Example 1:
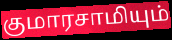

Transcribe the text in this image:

குமாரசாமியும்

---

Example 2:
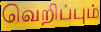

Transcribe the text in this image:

வெறிப்பும்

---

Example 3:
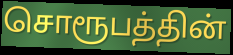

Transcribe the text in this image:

சொரூபத்தின்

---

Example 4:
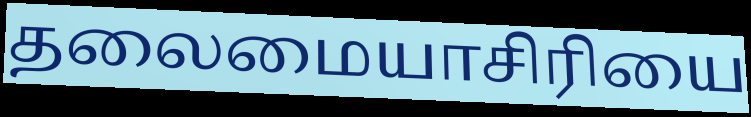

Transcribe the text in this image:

தலைமையாசிரியை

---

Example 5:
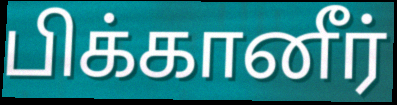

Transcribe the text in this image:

பிக்கானீர்